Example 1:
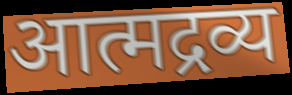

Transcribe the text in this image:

आत्मद्रव्य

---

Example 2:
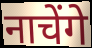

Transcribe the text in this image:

नाचेंगे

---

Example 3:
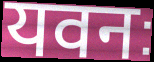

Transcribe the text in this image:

यवनः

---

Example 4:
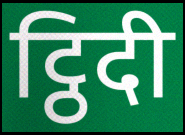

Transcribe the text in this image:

ट्ठिदी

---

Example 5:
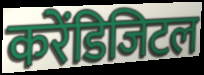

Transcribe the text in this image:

करेंडिजिटल